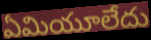
ఏమియూలేదు